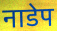
नाडेप